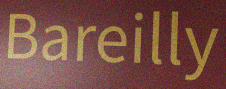
Bareilly